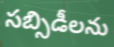
సబ్సిడీలను